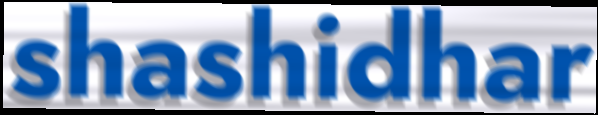
shashidhar